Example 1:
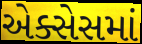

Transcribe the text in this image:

એક્સેસમાં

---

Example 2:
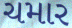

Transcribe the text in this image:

ચમાર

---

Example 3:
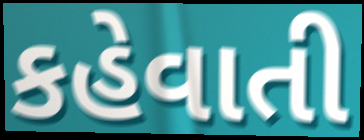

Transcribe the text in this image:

કહેવાતી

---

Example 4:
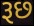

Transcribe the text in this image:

રૂછ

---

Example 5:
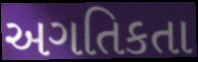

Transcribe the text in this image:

અગતિકતા